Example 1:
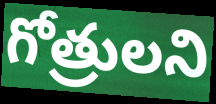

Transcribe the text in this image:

గోత్రులని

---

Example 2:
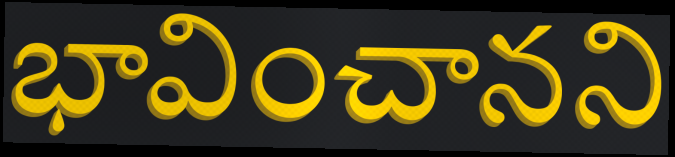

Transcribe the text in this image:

భావించానని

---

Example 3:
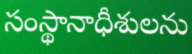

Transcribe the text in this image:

సంస్థానాధీశులను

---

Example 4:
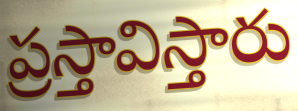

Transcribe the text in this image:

ప్రస్తావిస్తారు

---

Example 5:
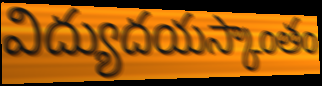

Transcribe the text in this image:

విద్యుదయస్కాంతం